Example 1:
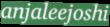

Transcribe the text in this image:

anjaleejoshi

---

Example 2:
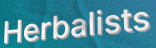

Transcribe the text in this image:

Herbalists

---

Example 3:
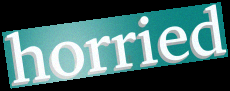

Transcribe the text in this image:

horried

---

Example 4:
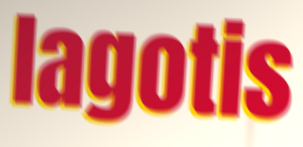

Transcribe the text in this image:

lagotis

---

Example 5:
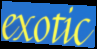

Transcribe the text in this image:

exotic